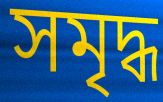
সমৃদ্ধ